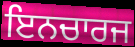
ਇਨਚਾਰਜ